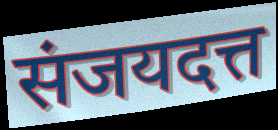
संजयदत्त